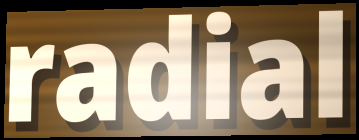
radial